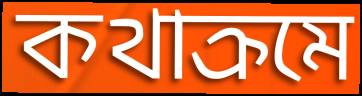
কথাক্রমে